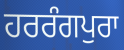
ਹਰਰੰਗਪੁਰਾ